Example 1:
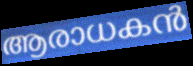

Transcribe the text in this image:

ആരാധകൻ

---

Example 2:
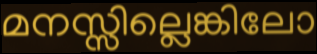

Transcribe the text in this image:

മനസ്സില്ലെങ്കിലോ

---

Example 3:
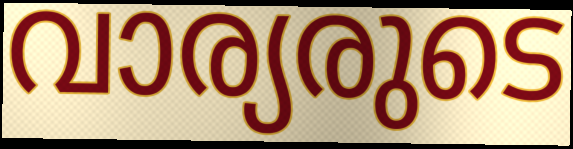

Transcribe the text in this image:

വാര്യരുടെ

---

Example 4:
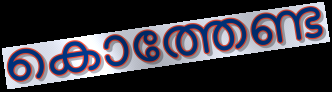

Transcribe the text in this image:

കൊത്തേണ്ട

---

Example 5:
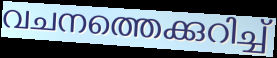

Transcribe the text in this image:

വചനത്തെക്കുറിച്ച്